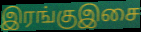
இரங்குஇசை